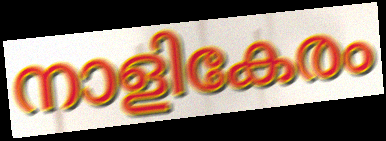
നാളികേരം